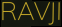
RAVJI